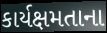
કાર્યક્ષમતાના